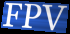
FPV